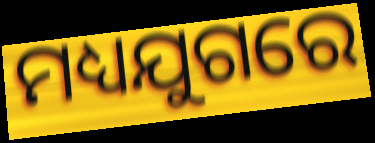
ମଧ୍ୟଯୁଗରେ